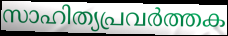
സാഹിത്യപ്രവർത്തക